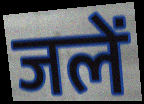
जलें